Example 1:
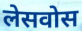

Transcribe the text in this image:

लेसवोस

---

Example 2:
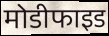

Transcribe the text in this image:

मोडीफाइड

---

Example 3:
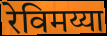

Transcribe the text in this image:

रेविमय्या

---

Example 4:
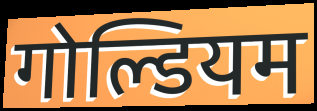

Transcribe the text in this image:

गोल्डियम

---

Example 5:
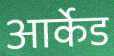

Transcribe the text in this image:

आर्केड